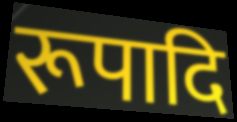
रूपादि